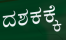
ದಶಕಕ್ಕೆ